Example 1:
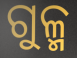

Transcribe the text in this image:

ଗୁଳ୍ମ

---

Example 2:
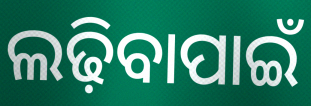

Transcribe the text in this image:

ଲଢ଼ିବାପାଇଁ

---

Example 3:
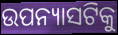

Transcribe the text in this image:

ଉପନ୍ୟାସଟିକୁ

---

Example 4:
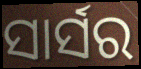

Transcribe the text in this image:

ସାର୍ସର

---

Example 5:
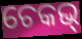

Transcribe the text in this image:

ଚେକଭ୍